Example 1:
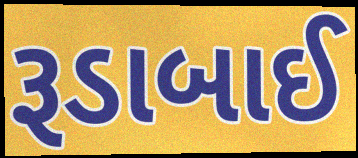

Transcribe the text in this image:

રૂડાબાઈ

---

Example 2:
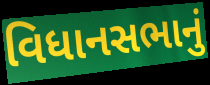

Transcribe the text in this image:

વિધાનસભાનું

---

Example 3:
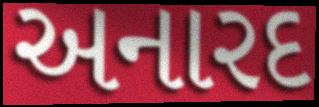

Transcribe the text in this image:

અનારદ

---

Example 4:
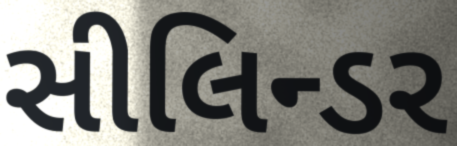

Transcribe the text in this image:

સીલિન્ડર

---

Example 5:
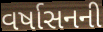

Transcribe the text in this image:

વર્ષાસનની